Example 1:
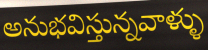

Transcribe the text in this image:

అనుభవిస్తున్నవాళ్ళు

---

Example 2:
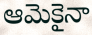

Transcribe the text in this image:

ఆమెకైనా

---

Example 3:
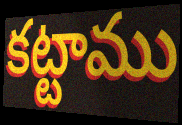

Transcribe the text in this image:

కట్టాము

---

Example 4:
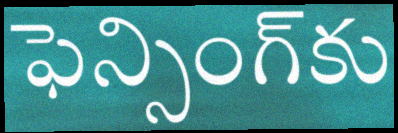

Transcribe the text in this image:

ఫెన్సింగ్‌కు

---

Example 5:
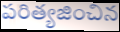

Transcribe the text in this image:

పరిత్యజించిన